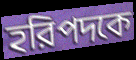
হরিপদকে